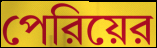
পেরিয়ের